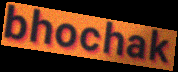
bhochak